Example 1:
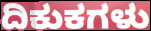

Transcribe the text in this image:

ದಿಕುಕಗಳು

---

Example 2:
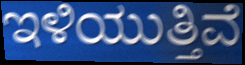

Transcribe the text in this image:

ಇಳಿಯುತ್ತಿವೆ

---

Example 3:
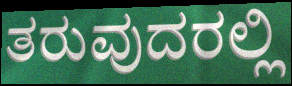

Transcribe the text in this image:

ತರುವುದರಲ್ಲಿ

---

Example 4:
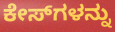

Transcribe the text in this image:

ಕೇಸ್‌ಗಳನ್ನು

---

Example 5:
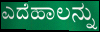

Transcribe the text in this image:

ಎದೆಹಾಲನ್ನು